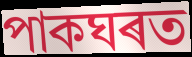
পাকঘৰত